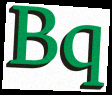
Bq